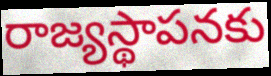
రాజ్యస్థాపనకు